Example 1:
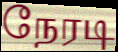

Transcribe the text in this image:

நேரடி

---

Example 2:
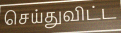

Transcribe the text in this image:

செய்துவிட்ட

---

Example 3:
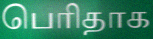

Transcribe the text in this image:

பெரிதாக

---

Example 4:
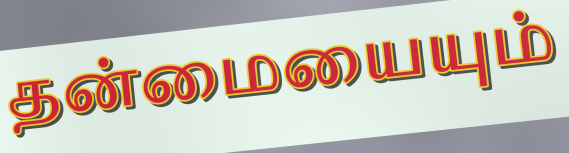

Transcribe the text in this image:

தன்மையையும்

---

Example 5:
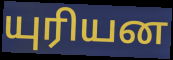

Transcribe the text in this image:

யுரியன